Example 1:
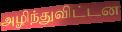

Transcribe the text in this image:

அழிந்துவிட்டன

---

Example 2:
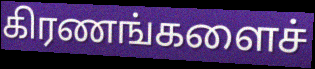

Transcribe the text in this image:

கிரணங்களைச்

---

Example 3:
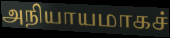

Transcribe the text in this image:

அநியாயமாகச்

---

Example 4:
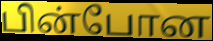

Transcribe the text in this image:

பின்போன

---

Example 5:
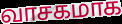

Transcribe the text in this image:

வாசகமாக